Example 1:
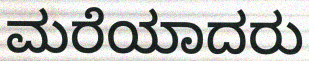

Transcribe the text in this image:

ಮರೆಯಾದರು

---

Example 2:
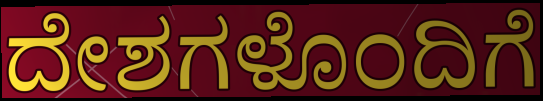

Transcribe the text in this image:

ದೇಶಗಳೊಂದಿಗೆ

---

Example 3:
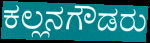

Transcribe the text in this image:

ಕಲ್ಲನಗೌಡರು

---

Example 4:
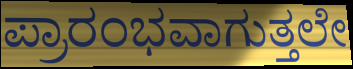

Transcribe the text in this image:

ಪ್ರಾರಂಭವಾಗುತ್ತಲೇ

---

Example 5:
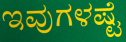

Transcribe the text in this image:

ಇವುಗಳಷ್ಟೆ